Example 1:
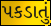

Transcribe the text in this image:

પકડાતું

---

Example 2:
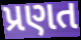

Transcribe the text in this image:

પ્રણત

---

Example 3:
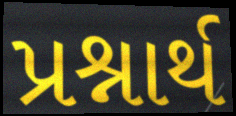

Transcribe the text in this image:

પ્રશ્નાર્થ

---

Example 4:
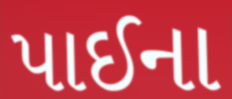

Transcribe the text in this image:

પાઈના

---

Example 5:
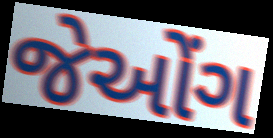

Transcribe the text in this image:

જેઓંગ